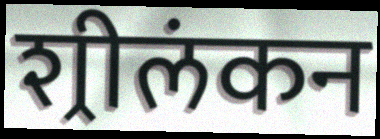
श्रीलंकन